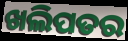
ଖଲିପତର